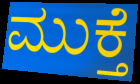
ಮುಕ್ತೆ